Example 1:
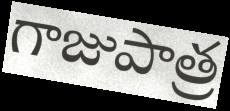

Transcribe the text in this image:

గాజుపాత్ర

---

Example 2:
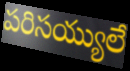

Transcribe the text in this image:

పరిసయ్యులే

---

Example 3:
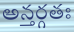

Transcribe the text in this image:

అన్తర్గతః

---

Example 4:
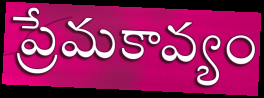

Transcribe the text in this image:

ప్రేమకావ్యం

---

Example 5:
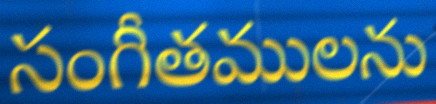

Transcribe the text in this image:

సంగీతములను